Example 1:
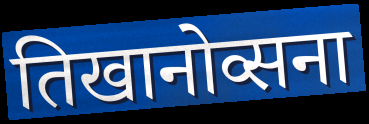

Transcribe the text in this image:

तिखानोव्सना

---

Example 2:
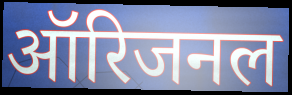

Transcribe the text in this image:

ऑरिजनल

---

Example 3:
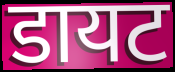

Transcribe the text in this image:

डायट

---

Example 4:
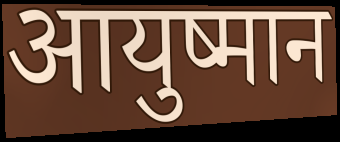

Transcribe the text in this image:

आयुष्मान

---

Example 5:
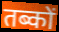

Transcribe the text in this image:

तब्कों